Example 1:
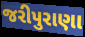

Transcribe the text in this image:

જરીપુરાણા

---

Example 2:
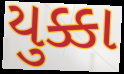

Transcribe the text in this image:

યુક્કા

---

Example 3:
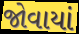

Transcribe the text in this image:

જોવાયાં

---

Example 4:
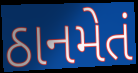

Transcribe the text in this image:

ઠાનમેતં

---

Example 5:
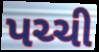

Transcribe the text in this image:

પચ્ચી